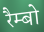
रैम्बो